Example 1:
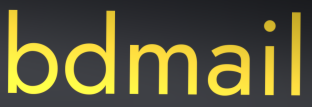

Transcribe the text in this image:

bdmail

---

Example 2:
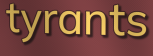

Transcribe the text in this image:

tyrants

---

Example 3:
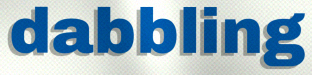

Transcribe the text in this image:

dabbling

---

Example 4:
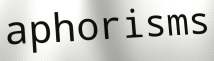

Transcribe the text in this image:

aphorisms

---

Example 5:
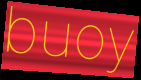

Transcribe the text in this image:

buoy